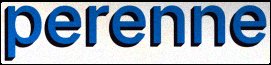
perenne